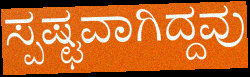
ಸ್ಪಷ್ಟವಾಗಿದ್ದವು